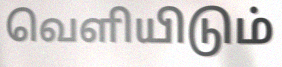
வெளியிடும்